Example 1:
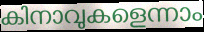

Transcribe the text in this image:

കിനാവുകളെന്നാം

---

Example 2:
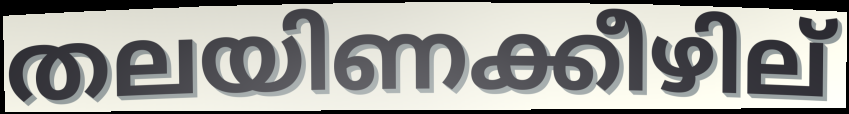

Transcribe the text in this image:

തലയിണക്കീഴില്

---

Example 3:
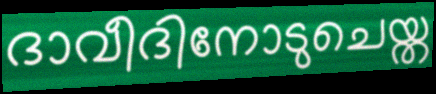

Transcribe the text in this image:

ദാവീദിനോടുചെയ്ത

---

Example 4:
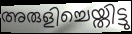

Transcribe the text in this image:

അരുളിച്ചെയ്തിട്ടു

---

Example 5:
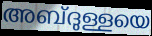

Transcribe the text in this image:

അബ്ദുള്ളയെ